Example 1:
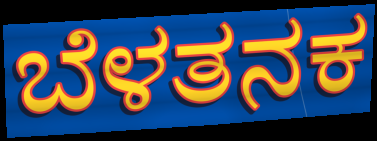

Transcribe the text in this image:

ಬೆಳತನಕ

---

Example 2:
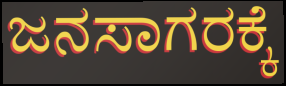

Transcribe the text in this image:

ಜನಸಾಗರಕ್ಕೆ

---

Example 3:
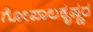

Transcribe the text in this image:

ಗೋಪಾಲಕೃಷ್ಣರ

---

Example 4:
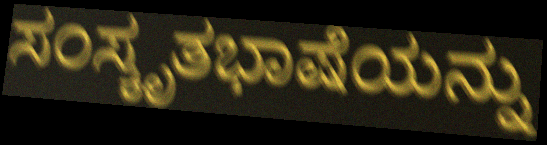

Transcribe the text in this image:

ಸಂಸ್ಕೃತಭಾಷೆಯನ್ನು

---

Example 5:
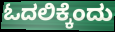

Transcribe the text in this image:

ಓದಲಿಕ್ಕೆಂದು